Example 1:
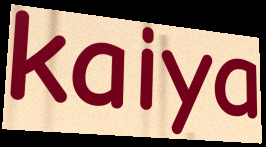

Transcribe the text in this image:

kaiya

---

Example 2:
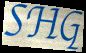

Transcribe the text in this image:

SHG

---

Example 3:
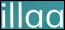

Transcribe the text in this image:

illaa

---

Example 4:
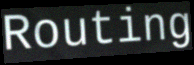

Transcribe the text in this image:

Routing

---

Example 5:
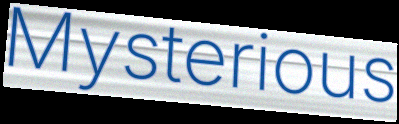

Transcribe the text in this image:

Mysterious